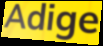
Adige